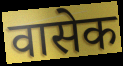
वासेक